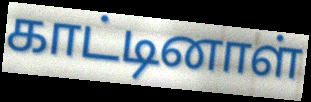
காட்டினாள்